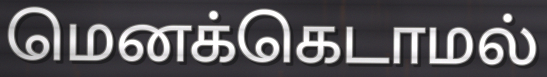
மெனக்கெடாமல்